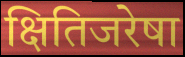
क्षितिजरेषा